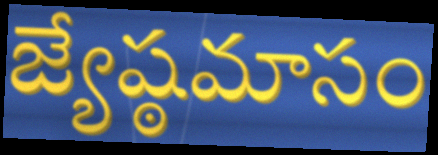
జ్యేష్ఠమాసం